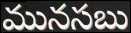
మునసబు